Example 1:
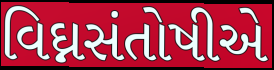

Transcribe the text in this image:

વિઘ્નસંતોષીએ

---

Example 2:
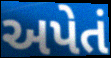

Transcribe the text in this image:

અપેતં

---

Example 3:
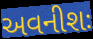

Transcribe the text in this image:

અવનીશઃ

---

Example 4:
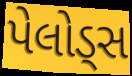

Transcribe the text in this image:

પેલોડ્સ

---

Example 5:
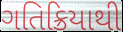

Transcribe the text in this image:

ગતિક્રિયાથી